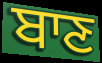
ਬਾਣ